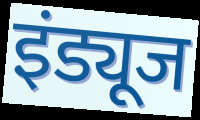
इंड्यूज